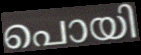
പൊയി